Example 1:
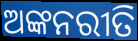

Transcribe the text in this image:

ଅଙ୍କନରୀତି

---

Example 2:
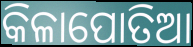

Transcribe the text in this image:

କିଳାପୋତିଆ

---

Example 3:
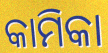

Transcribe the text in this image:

କାମିକା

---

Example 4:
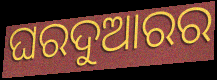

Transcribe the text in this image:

ଘରଦୁଆରର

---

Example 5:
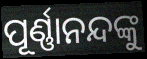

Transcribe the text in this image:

ପୂର୍ଣ୍ଣାନନ୍ଦଙ୍କୁ